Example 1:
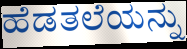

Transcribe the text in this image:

ಹೆಡತಲೆಯನ್ನು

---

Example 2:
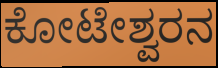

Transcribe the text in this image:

ಕೋಟೇಶ್ವರನ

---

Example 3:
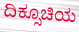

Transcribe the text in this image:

ದಿಕ್ಸೂಚಿಯ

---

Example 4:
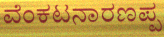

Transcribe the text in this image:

ವೆಂಕಟನಾರಣಪ್ಪ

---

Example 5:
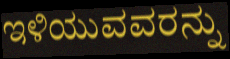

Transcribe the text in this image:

ಇಳಿಯುವವರನ್ನು